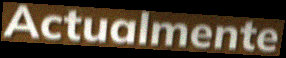
Actualmente